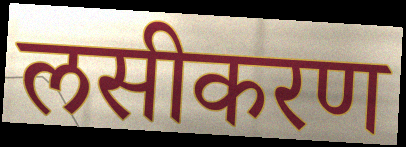
लसीकरण